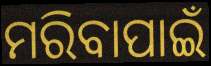
ମରିବାପାଇଁ